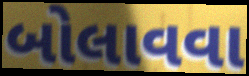
બોલાવવા